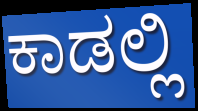
ಕಾಡಲ್ಲಿ